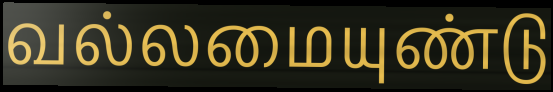
வல்லமையுண்டு